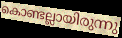
കൊണ്ടല്ലായിരുന്നു